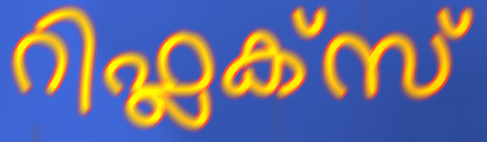
റിഫ്ലക്സ്